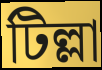
টিল্লা